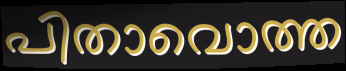
പിതാവൊത്ത